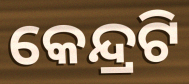
କେନ୍ଦ୍ରଟି